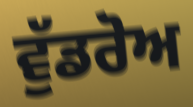
ਵੁੱਡਰੋਅ